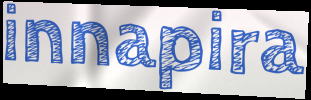
innapira